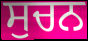
ਸੁਚਨ